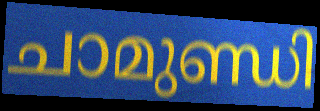
ചാമുണ്ഡി